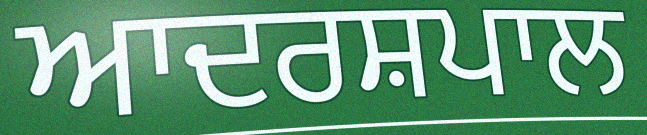
ਆਦਰਸ਼ਪਾਲ